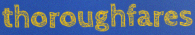
thoroughfares